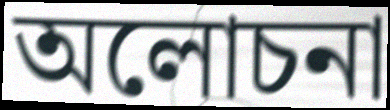
অলোচনা